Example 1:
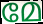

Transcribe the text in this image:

മേ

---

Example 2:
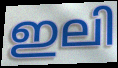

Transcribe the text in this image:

ഇലി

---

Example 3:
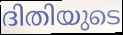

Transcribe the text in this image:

ദിതിയുടെ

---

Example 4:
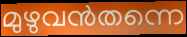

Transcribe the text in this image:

മുഴുവൻതന്നെ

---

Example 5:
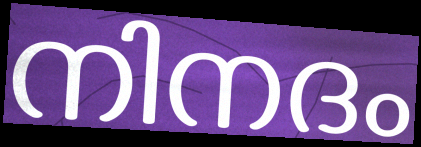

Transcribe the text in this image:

നിനദം